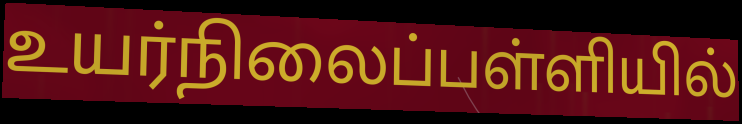
உயர்நிலைப்பள்ளியில்